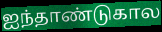
ஐந்தாண்டுகால